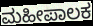
ಮಹೀಪಾಲಕ